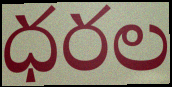
ధరల